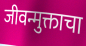
जीवन्मुक्ताचा